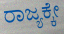
ರಾಜ್ಯಕ್ಕೇ